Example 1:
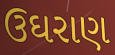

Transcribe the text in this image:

ઉઘરાણ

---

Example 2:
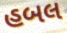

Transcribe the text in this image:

હબલ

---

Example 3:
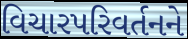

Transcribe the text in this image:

વિચારપરિવર્તનને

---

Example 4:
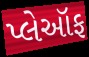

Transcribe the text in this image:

પ્લેઑફ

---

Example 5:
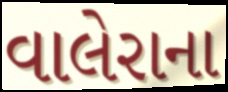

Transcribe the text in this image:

વાલેરાના